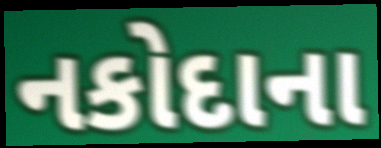
નકોદાના